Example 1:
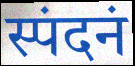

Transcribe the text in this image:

स्पंदनं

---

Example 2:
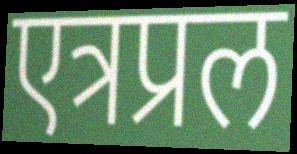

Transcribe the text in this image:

एत्रप्रल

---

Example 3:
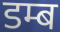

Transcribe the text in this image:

डम्ब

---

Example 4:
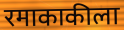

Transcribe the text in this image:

रमाकाकीला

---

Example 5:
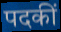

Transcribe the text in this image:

पदकीं